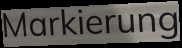
Markierung